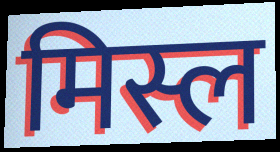
मिस्ल